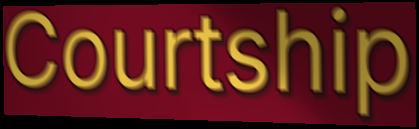
Courtship